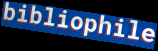
bibliophile